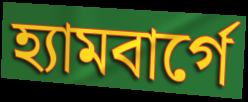
হ্যামবার্গে